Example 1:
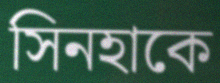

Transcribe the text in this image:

সিনহাকে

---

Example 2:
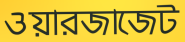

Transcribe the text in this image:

ওয়ারজাজেট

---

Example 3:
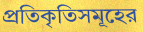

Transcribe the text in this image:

প্রতিকৃতিসমূহের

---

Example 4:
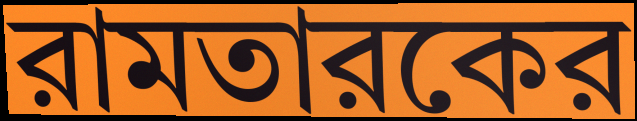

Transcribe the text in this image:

রামতারকের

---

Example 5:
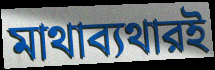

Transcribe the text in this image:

মাথাব্যথারই